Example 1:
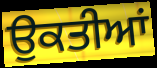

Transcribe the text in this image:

ਉਕਤੀਆਂ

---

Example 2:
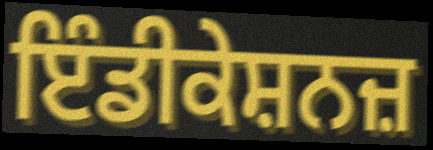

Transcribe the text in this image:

ਇੰਡੀਕੇਸ਼ਨਜ਼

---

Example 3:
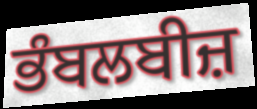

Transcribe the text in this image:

ਭੰਬਲਬੀਜ਼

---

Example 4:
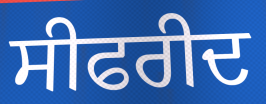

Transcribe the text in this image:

ਸੀਫਰੀਦ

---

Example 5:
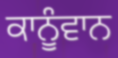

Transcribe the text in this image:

ਕਾਨੂੰਵਾਨ